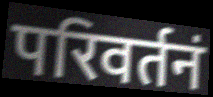
परिवर्तनं